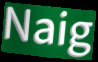
Naig